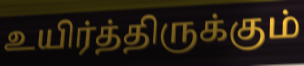
உயிர்த்திருக்கும்